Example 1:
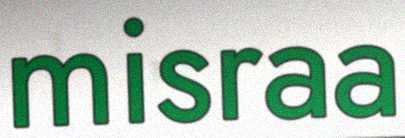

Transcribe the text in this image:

misraa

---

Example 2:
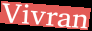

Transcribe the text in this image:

Vivran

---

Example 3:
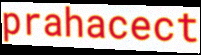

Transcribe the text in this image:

prahacect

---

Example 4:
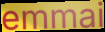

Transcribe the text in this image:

emmai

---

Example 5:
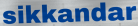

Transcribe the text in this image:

sikkandar